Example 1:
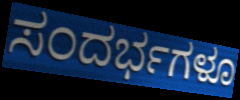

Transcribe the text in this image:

ಸಂದರ್ಭಗಳೂ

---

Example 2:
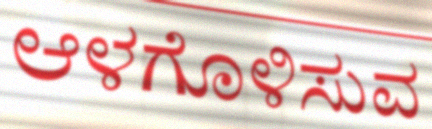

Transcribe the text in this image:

ಆಳಗೊಳಿಸುವ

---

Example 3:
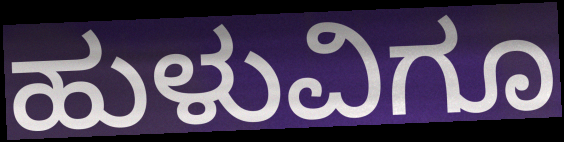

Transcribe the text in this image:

ಹುಳುವಿಗೂ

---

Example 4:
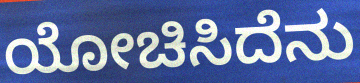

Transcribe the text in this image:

ಯೋಚಿಸಿದೆನು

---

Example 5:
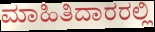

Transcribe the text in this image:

ಮಾಹಿತಿದಾರರಲ್ಲಿ